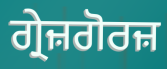
ਗ੍ਰੇਜ਼ਗੋਰਜ਼